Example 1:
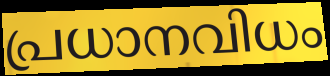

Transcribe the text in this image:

പ്രധാനവിധം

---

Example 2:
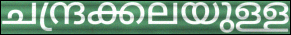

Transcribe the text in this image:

ചന്ദ്രക്കലയുള്ള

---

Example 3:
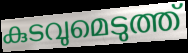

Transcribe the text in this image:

കുടവുമെടുത്ത്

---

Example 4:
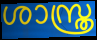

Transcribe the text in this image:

ശാസ്ത്ര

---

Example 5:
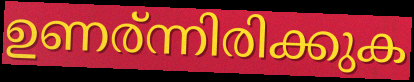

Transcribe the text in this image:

ഉണര്ന്നിരിക്കുക